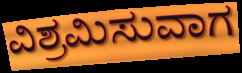
ವಿಶ್ರಮಿಸುವಾಗ